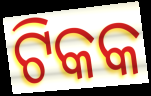
ଟିକକ